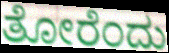
ತೋರೆಂದು